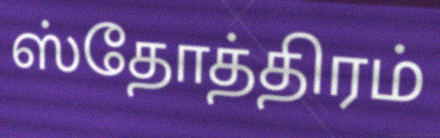
ஸ்தோத்திரம்